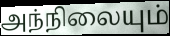
அந்நிலையும்